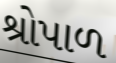
શ્રોપાળ